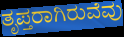
ತೃಪ್ತರಾಗಿರುವೆವು